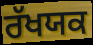
ਰੱਖਯਕ